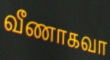
வீணாகவா